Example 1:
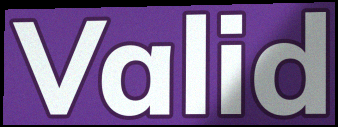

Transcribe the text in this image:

Valid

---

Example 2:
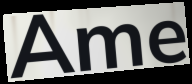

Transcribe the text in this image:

Ame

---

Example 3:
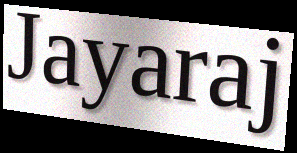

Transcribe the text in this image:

Jayaraj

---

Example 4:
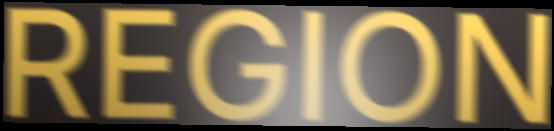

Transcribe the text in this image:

REGION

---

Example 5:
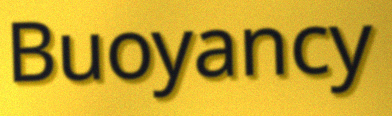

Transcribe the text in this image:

Buoyancy